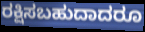
ರಕ್ಷಿಸಬಹುದಾದರೂ